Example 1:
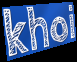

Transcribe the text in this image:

khoi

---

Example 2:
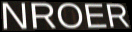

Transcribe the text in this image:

NROER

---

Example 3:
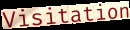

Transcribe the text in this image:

Visitation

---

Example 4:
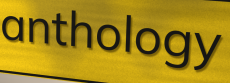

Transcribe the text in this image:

anthology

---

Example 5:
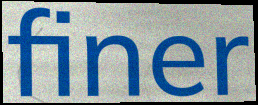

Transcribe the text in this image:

finer